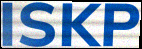
ISKP